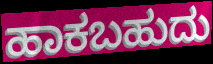
ಹಾಕಬಹುದು